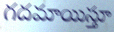
గదమాయిస్తూ